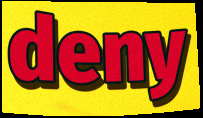
deny